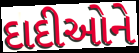
દાદીઓને